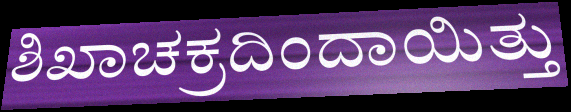
ಶಿಖಾಚಕ್ರದಿಂದಾಯಿತ್ತು